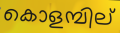
കൊളമ്പില്